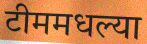
टीममधल्या